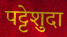
पट्टेशुदा